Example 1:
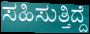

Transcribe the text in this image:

ಸಹಿಸುತ್ತಿದ್ದೆ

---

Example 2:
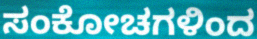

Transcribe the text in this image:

ಸಂಕೋಚಗಳಿಂದ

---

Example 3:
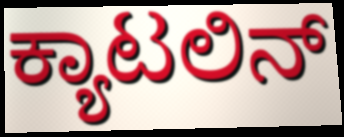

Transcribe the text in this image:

ಕ್ಯಾಟಲಿನ್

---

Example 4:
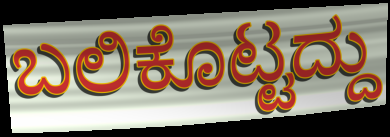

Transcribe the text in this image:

ಬಲಿಕೊಟ್ಟದ್ದು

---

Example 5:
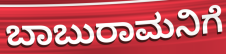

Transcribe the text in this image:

ಬಾಬುರಾಮನಿಗೆ